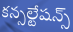
కన్సల్టేషన్స్